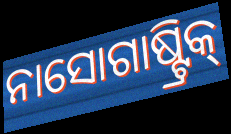
ନାସୋଗାଷ୍ଟ୍ରିକ୍